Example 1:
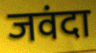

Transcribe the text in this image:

जवंदा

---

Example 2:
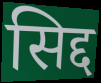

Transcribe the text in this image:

सिद्द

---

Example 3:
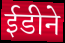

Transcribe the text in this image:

ईडीने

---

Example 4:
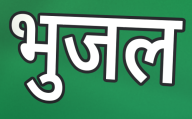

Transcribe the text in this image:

भुजल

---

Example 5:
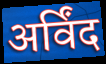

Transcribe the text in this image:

अर्विंद